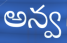
అన్వ